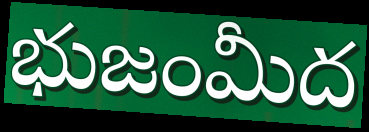
భుజంమీద